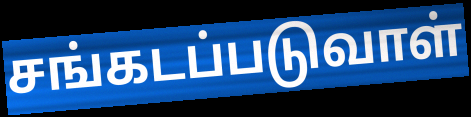
சங்கடப்படுவாள்